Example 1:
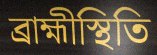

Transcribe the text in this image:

ব্রাহ্মীস্থিতি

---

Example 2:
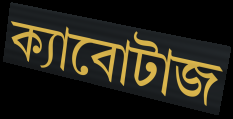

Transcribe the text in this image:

ক্যাবোটাজ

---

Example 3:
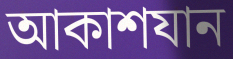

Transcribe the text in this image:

আকাশযান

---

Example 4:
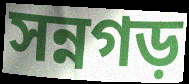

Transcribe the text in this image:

সন্নগড়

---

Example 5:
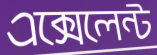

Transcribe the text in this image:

এক্সেলেন্ট